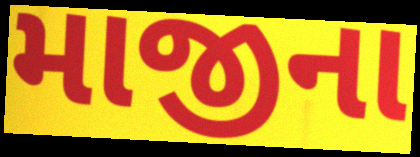
માજીના